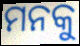
ମନକୁ